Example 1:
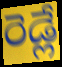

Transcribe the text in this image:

రెడ్లే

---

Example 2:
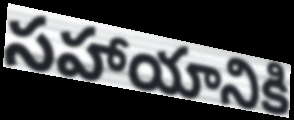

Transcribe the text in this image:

సహాయానికి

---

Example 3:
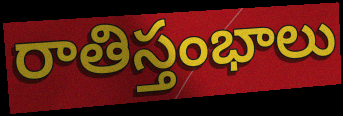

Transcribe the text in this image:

రాతిస్తంభాలు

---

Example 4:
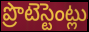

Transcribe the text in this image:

ప్రొటెస్టెంట్లు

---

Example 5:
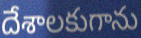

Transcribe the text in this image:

దేశాలకుగాను